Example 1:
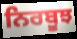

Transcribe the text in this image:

ਨਿਰਬੂਝ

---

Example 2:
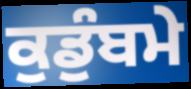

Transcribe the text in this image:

ਕੁਡੁੰਬਮੇ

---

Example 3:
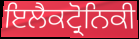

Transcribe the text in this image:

ਇਲੈਕਟ੍ਰੋਨਿਕੀ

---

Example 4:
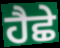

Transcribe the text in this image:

ਹੈਛੇ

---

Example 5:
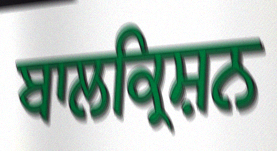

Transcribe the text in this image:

ਬਾਲਕ੍ਰਿਸ਼ਨ